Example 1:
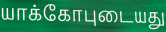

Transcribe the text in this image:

யாக்கோபுடையது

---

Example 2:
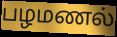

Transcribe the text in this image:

பழமணல்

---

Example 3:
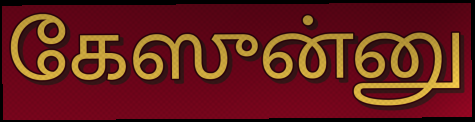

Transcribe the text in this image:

கேஸுன்னு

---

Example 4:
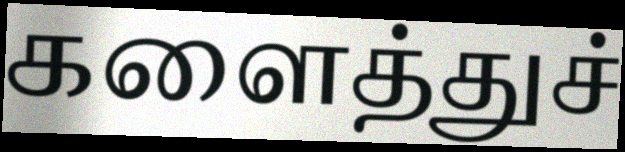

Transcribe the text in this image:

களைத்துச்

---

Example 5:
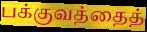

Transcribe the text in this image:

பக்குவத்தைத்